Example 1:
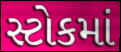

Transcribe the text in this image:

સ્ટોકમાં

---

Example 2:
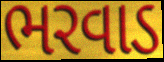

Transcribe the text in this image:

ભરવાડ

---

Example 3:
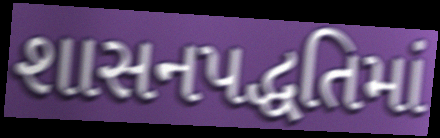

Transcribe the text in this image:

શાસનપદ્ધતિમાં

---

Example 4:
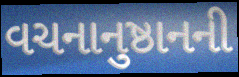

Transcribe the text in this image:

વચનાનુષ્ઠાનની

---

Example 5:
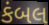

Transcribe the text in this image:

કંબલ